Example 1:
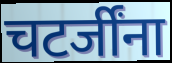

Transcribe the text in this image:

चटर्जींना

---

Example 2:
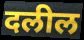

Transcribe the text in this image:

दलील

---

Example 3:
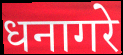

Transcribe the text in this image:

धनागरे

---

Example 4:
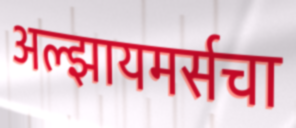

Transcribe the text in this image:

अल्झायमर्सचा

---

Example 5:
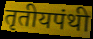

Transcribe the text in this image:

तृतीयपंथी